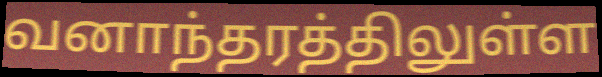
வனாந்தரத்திலுள்ள